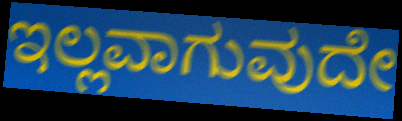
ಇಲ್ಲವಾಗುವುದೇ